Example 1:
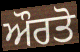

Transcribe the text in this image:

ਔਰਤੋ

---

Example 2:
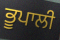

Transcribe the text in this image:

ਭੂਪਾਲੀ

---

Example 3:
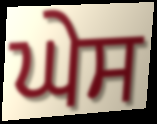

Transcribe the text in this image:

ਘੇਸ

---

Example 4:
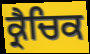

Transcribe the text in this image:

ਕ੍ਰੈਚਿਕ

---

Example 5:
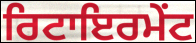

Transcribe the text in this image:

ਰਿਟਾਇਰਮੇਂਟ